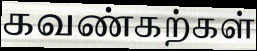
கவண்கற்கள்